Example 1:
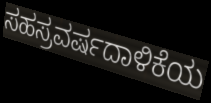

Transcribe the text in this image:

ಸಹಸ್ರವರ್ಷದಾಳಿಕೆಯ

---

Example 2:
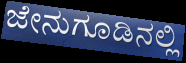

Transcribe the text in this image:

ಜೇನುಗೂಡಿನಲ್ಲಿ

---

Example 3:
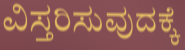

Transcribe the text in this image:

ವಿಸ್ತರಿಸುವುದಕ್ಕೆ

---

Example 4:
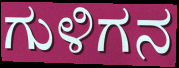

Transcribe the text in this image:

ಗುಳಿಗನ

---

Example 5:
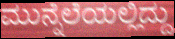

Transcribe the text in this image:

ಮುನ್ನೆಲೆಯಲ್ಲಿದ್ದು